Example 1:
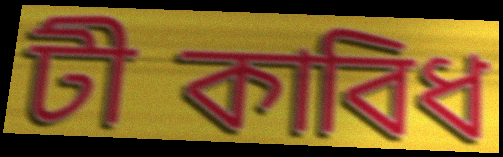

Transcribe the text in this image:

টীকাবিধ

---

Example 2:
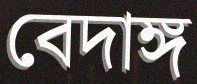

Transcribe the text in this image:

বেদাঙ্গ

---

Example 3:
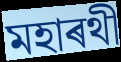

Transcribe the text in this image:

মহাৰথী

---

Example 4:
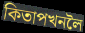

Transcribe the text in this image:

কিতাপখনলৈ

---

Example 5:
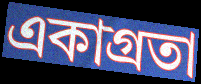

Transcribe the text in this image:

একাগ্ৰতা